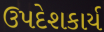
ઉપદેશકાર્ય